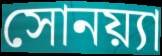
সোনয়্যা